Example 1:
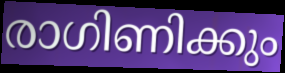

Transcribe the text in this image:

രാഗിണിക്കും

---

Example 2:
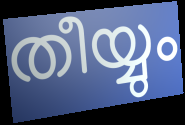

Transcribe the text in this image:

തീയ്യും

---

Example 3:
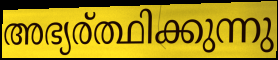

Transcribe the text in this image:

അഭ്യര്ത്ഥിക്കുന്നു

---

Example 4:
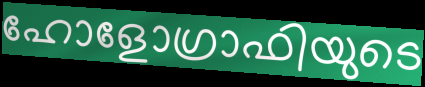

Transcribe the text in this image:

ഹോളോഗ്രാഫിയുടെ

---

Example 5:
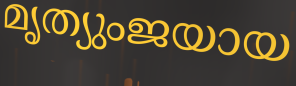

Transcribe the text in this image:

മൃത്യുംജയായ